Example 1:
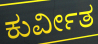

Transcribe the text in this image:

ಕುರ್ವೀತ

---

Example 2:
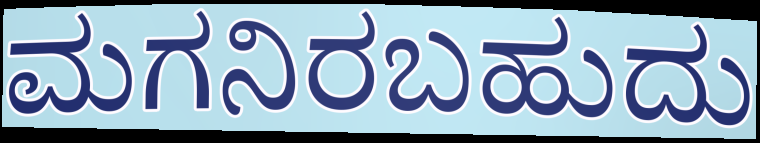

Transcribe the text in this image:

ಮಗನಿರಬಹುದು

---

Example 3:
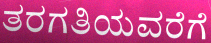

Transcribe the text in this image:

ತರಗತಿಯವರೆಗೆ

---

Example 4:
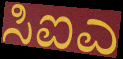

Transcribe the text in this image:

ಸಿಐಎ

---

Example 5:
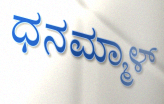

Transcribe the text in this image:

ಧನಮ್ಮಾಳ್